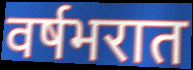
वर्षभरात